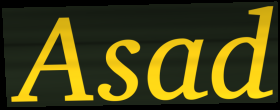
Asad